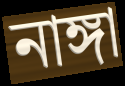
নাঙ্গা